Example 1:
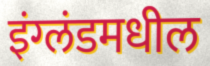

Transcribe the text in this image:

इंग्‍लंडमधील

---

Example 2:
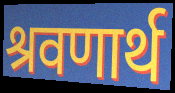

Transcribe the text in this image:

श्रवणार्थ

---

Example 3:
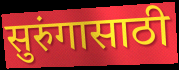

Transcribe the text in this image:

सुरुंगासाठी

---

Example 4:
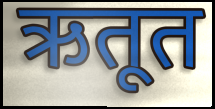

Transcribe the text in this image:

ऋतूत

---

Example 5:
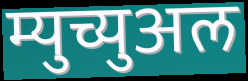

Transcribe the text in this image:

म्युच्युअल